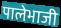
पालेभाजी